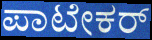
ಪಾಟೇಕರ್